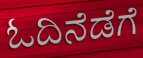
ಓದಿನೆಡೆಗೆ